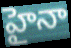
హైనా